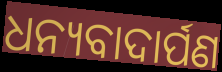
ଧନ୍ୟବାଦାର୍ପଣ